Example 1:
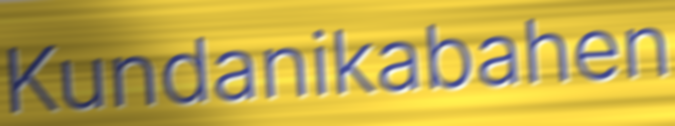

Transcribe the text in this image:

Kundanikabahen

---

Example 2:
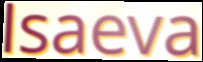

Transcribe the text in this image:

Isaeva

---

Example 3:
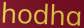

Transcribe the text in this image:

hodha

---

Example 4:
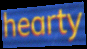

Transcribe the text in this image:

hearty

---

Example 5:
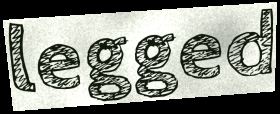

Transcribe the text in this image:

legged